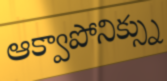
ఆక్వాపోనిక్స్ను